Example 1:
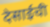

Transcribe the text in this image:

देसाईची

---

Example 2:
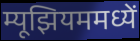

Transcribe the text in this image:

म्यूझियममध्यें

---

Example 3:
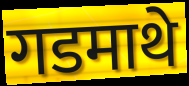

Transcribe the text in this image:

गडमाथे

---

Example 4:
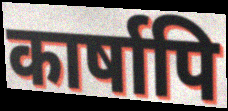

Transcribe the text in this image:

कार्षापि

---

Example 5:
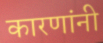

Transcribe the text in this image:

कारणांनी